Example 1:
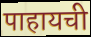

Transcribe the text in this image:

पाहायची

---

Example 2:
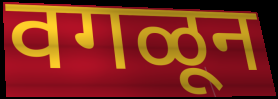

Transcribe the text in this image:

वगळून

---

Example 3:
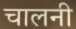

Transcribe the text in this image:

चालनी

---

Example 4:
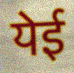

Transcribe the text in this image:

येई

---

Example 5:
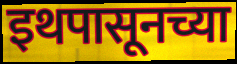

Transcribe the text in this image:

इथपासूनच्या